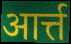
आर्त्त